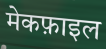
मेकफ़ाइल